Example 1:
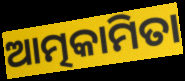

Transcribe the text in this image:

ଆତ୍ମକାମିତା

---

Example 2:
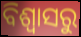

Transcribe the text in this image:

ବିଶ୍ବାସରୁ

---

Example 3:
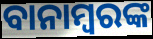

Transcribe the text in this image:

ବାନାମ୍ବରଙ୍କ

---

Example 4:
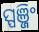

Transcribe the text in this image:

ସ୍ପଞ୍ଜିଂ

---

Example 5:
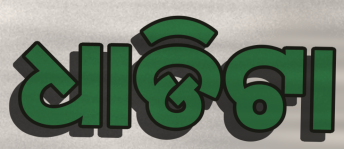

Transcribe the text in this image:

ଧାଡିଟା